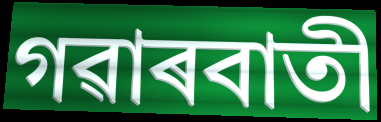
গৱাৰবাতী